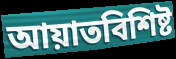
আয়াতবিশিষ্ট